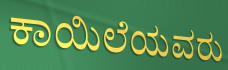
ಕಾಯಿಲೆಯವರು